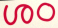
ശഠ